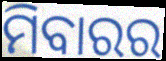
ମିବାରର